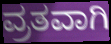
ವ್ರತವಾಗಿ